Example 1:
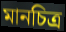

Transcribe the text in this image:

মানচিত্ৰ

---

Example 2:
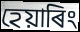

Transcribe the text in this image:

হেয়াৰিং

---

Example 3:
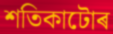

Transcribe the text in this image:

শতিকাটোৰ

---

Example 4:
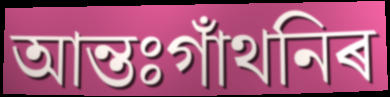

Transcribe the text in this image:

আন্তঃগাঁথনিৰ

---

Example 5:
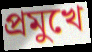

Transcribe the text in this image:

প্ৰমুখে